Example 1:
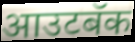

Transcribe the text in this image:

आउटबॅक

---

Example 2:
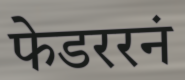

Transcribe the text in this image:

फेडररनं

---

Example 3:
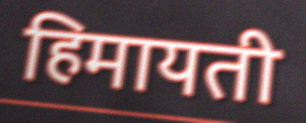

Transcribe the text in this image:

हिमायती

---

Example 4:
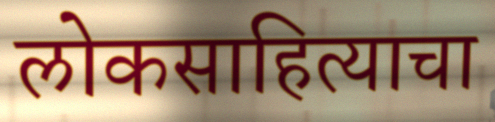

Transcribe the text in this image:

लोकसाहित्याचा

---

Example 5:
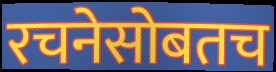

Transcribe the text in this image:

रचनेसोबतच